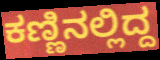
ಕಣ್ಣಿನಲ್ಲಿದ್ದ